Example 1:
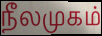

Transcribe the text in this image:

நீலமுகம்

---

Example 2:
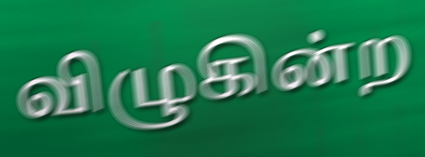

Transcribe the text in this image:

விழுகின்ற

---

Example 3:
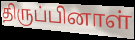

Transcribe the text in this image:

திருப்பினாள்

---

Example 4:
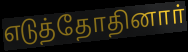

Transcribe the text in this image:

எடுத்தோதினார்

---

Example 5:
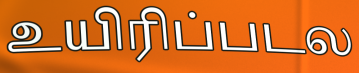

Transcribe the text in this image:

உயிரிப்படல